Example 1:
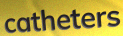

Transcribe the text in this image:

catheters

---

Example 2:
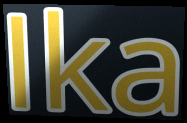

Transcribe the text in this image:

Ika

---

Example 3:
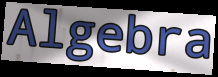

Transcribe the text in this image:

Algebra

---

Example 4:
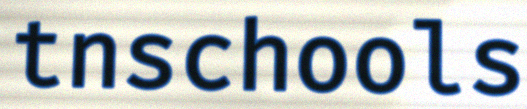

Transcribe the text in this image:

tnschools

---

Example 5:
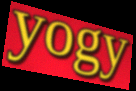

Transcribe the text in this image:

yogy